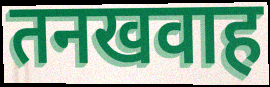
तनखवाह